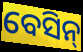
ବେସିନ୍